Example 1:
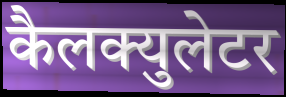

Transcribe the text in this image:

कैलक्युलेटर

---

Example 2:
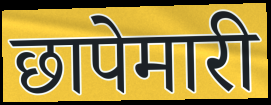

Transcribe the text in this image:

छापेमारी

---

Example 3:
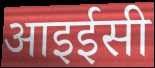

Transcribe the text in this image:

आइईसी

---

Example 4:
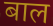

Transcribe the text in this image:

बाल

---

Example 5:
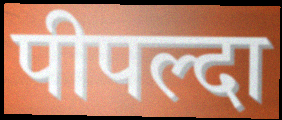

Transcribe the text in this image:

पीपल्दा